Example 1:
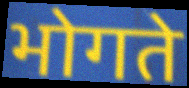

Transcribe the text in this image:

भोगते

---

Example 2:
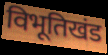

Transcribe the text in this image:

विभूतिखंड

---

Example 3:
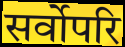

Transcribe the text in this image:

सर्वोपरि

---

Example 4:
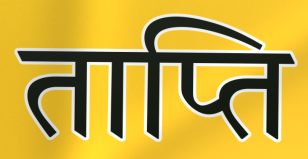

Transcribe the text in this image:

ताप्ति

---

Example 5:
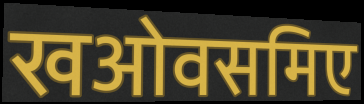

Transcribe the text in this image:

खओवसमिए